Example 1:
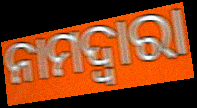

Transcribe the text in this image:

ନାମଦ୍ଵାରା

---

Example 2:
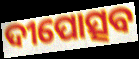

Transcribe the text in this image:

ଦୀପୋତ୍ସବ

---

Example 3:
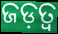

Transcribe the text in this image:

ଜଡ଼ତ୍ଵ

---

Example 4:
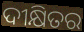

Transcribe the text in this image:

ଦୀକ୍ଷିତର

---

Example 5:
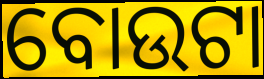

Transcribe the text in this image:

ବୋଉଟା